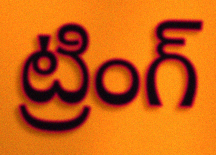
ట్రింగ్